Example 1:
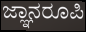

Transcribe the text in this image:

ಜ್ಞಾನರೂಪಿ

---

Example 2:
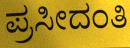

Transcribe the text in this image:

ಪ್ರಸೀದಂತಿ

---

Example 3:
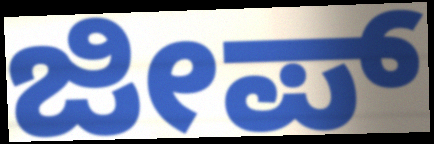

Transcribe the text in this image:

ಜೀಪ್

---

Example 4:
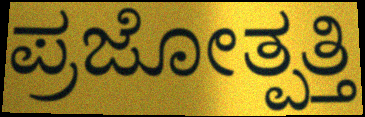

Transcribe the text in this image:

ಪ್ರಜೋತ್ಪತ್ತಿ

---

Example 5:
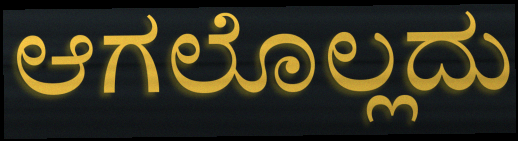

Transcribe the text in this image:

ಆಗಲೊಲ್ಲದು